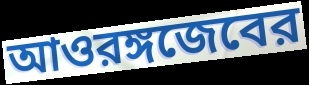
আওরঙ্গজেবের